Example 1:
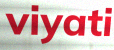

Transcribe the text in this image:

viyati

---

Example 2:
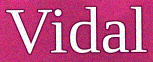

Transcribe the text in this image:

Vidal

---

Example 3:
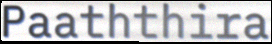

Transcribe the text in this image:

Paaththira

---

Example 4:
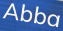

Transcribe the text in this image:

Abba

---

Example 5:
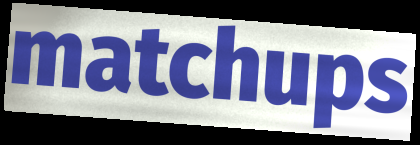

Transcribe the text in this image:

matchups